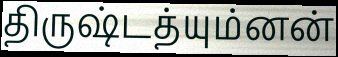
திருஷ்டத்யும்னன்